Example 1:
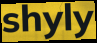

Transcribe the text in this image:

shyly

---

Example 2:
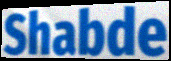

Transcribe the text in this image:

Shabde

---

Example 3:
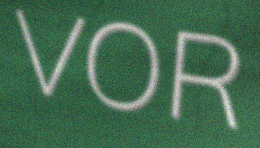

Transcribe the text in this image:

VOR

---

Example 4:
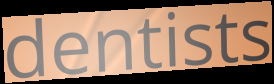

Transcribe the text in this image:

dentists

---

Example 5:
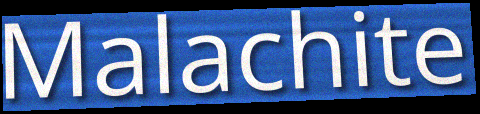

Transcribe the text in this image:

Malachite